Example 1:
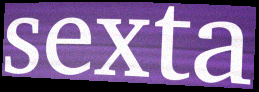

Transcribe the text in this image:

sexta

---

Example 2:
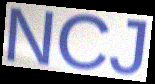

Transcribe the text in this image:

NCJ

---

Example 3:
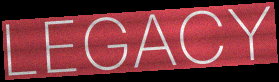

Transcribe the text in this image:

LEGACY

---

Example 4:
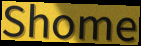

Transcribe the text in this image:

Shome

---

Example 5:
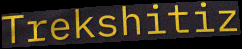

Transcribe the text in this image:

Trekshitiz